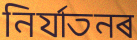
নিৰ্যাতনৰ